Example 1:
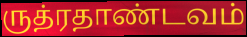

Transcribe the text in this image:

ருத்ரதாண்டவம்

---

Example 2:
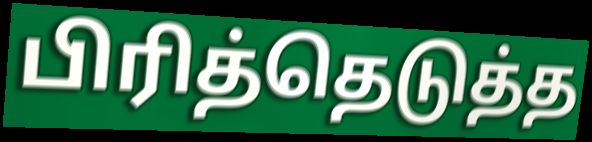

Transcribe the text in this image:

பிரித்தெடுத்த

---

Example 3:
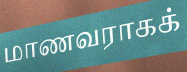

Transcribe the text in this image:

மாணவராகக்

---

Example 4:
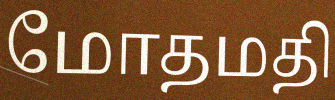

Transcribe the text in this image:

மோதமதி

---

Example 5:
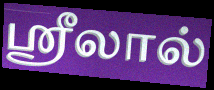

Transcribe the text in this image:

ஸ்ரீலால்